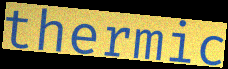
thermic